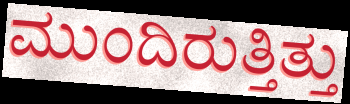
ಮುಂದಿರುತ್ತಿತ್ತು